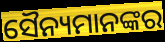
ସୈନ୍ୟମାନଙ୍କର